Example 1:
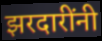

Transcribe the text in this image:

झरदारींनी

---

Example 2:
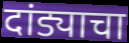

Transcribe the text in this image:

दांड्याचा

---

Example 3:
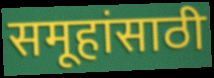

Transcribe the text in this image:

समूहांसाठी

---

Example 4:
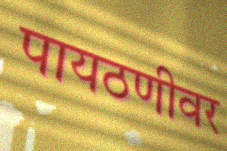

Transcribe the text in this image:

पायठणीवर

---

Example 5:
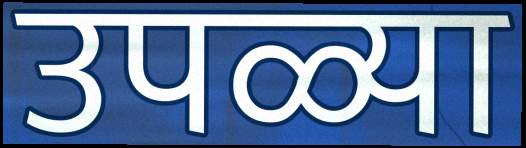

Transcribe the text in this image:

उपळ्या